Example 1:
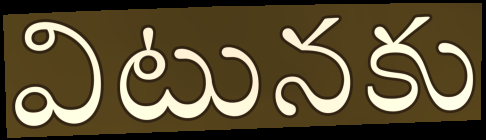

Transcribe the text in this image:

విటునకు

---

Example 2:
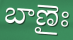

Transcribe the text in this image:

బాణైః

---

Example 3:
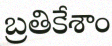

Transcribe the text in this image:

బ్రతికేశాం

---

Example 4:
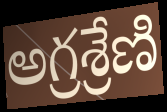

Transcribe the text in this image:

అగ్రశ్రేణి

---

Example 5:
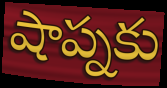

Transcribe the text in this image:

షాప్నకు